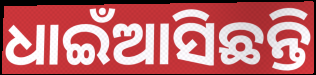
ଧାଇଁଆସିଛନ୍ତି